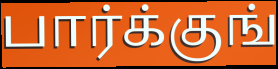
பார்க்குங்